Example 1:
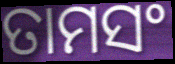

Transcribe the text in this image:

ତାମସଂ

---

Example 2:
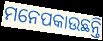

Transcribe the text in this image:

ମନେପକାଉଛନ୍ତି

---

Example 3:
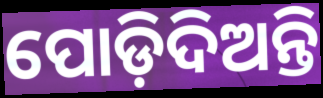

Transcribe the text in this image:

ପୋଡ଼ିଦିଅନ୍ତି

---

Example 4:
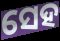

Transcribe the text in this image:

ସେହ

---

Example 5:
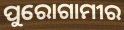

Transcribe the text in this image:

ପୁରୋଗାମୀର